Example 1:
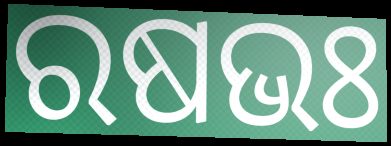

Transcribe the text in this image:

ରଷଭଃ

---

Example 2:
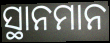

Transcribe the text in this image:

ସ୍ଥାନମାନ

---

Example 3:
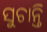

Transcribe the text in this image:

ସୁଚାନ୍ତି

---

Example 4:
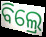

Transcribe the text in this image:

ବିଲ୍ରେ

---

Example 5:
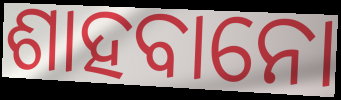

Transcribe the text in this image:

ଶାହବାନୋ